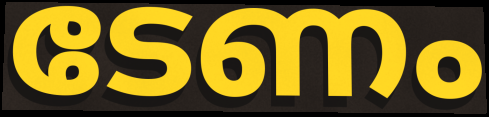
ടേണം